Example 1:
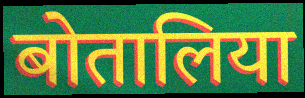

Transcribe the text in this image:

बोतालिया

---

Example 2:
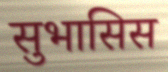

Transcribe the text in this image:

सुभासिस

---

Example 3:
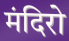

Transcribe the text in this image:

मंदिरो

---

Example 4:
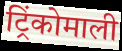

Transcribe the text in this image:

ट्रिंकोमाली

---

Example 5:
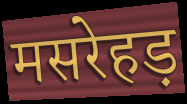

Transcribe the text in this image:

मसरेहड़